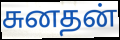
சுனதன்